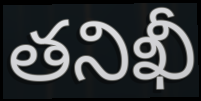
తనిఖీ